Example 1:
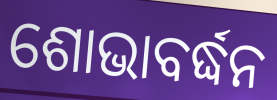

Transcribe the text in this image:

ଶୋଭାବର୍ଦ୍ଧନ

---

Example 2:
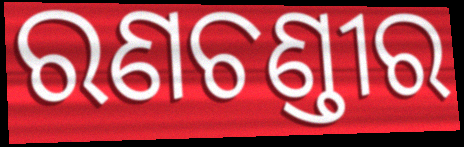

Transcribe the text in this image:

ରଣଚଣ୍ଡୀର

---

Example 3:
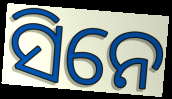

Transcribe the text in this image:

ସିନେ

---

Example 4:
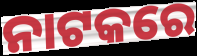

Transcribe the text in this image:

ନାଟକରେ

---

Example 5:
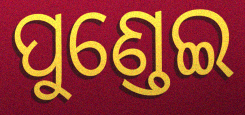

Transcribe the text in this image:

ପୁଣ୍ଡେଇ